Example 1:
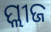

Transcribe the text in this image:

ପ୍ଲୀଜ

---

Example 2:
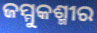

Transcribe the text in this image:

ଜମ୍ମୁକଶ୍ମୀର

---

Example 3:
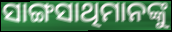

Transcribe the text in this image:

ସାଙ୍ଗସାଥିମାନଙ୍କୁ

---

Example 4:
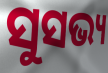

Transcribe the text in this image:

ସୁସଭ୍ୟ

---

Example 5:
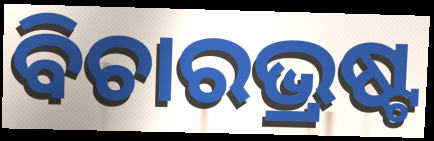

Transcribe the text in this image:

ବିଚାରଭ୍ରଷ୍ଟ